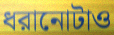
ধরানোটাও